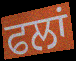
ਫਲਾਂ